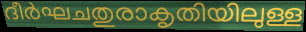
ദീർഘചതുരാകൃതിയിലുള്ള